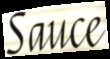
Sauce